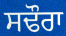
ਸਢੌਰਾ